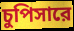
চুপিসারে